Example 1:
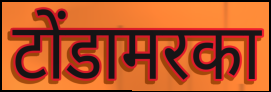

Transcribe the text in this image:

टोंडामरका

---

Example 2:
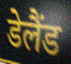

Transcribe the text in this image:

डेलैंड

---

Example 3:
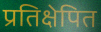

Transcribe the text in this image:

प्रतिक्षेपित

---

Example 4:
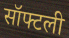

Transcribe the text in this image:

सॉफ्टली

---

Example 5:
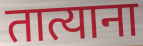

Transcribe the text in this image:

तात्याना